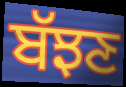
ਬੱਝਣ